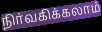
நிர்வகிக்கலாம்